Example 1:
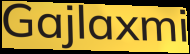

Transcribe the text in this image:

Gajlaxmi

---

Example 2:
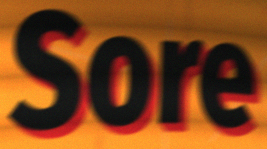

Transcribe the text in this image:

Sore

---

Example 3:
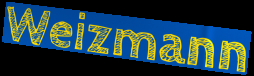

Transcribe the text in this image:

Weizmann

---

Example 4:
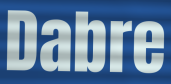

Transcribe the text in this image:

Dabre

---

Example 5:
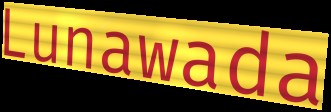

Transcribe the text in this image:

Lunawada